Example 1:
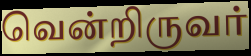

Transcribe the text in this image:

வென்றிருவர்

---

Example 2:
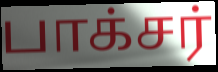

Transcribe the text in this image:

பாக்சர்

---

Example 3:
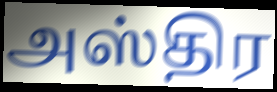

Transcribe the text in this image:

அஸ்திர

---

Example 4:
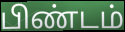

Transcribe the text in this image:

பிண்டம்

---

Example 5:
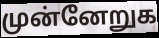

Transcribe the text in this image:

முன்னேறுக